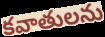
కవాతులను